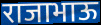
राजाभाऊ